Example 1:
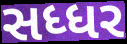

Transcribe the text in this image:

સધ્ધર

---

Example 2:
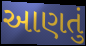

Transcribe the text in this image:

આણતું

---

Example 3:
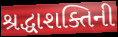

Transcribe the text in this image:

શ્રદ્ધાશક્તિની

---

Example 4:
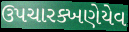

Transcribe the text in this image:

ઉપચારક્ખણેયેવ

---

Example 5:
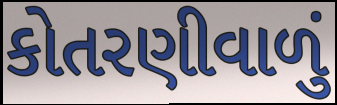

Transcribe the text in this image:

કોતરણીવાળું